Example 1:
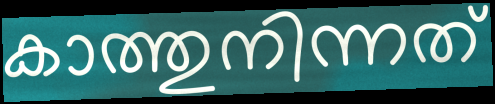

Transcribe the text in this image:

കാത്തുനിന്നത്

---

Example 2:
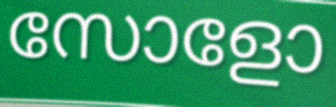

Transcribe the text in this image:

സോളോ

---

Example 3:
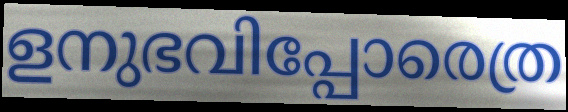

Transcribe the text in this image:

ളനുഭവിപ്പോരെത്ര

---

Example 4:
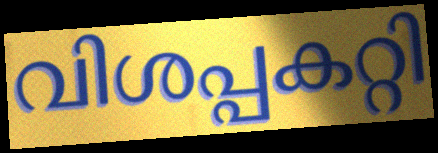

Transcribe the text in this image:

വിശപ്പകറ്റി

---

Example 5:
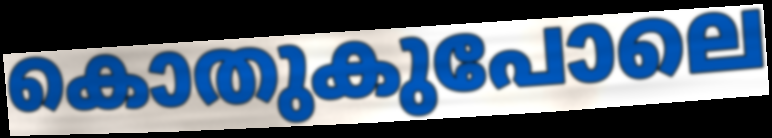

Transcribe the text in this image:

കൊതുകുപോലെ